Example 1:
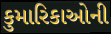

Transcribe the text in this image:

કુમારિકાઓની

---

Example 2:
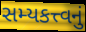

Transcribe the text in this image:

સમ્યકત્ત્વનું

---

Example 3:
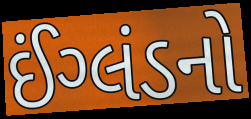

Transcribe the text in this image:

ઈંગ્લંડનો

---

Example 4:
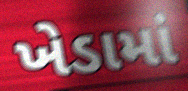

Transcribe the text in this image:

ખેડામાં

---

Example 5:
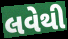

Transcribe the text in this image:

લવેથી